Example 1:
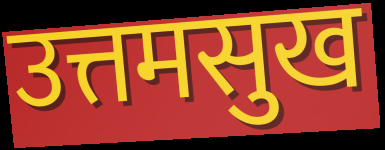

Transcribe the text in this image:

उत्तमसुख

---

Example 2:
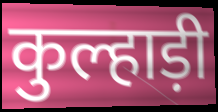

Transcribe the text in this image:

कुल्‍हाड़ी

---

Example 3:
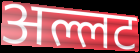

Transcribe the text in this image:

अल्लट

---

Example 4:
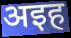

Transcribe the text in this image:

अइह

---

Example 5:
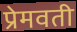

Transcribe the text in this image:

प्रेमवती